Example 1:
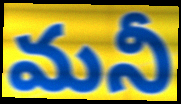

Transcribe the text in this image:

మనీ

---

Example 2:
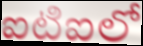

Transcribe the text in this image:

ఐటిఐలో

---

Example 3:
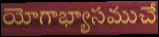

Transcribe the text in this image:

యోగాభ్యాసముచే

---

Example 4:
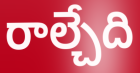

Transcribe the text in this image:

రాల్చేది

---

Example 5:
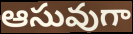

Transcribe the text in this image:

ఆసువుగా